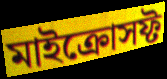
মাইক্রোসফ্ট